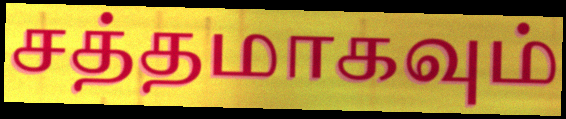
சத்தமாகவும்